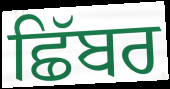
ਛਿੱਬਰ